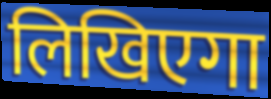
लिखिएगा